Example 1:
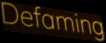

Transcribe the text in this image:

Defaming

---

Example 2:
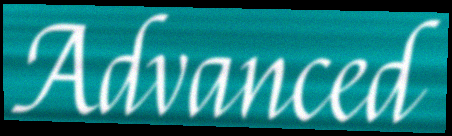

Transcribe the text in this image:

Advanced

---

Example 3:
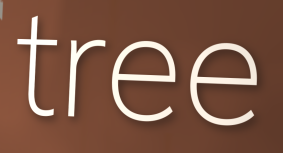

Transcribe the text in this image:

tree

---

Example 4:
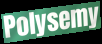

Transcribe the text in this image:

Polysemy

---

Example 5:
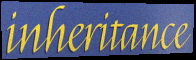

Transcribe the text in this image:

inheritance